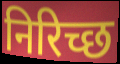
निरिच्छ